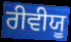
ਰੀਵੀਯੂ